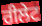
ਰੀਲੇਟ